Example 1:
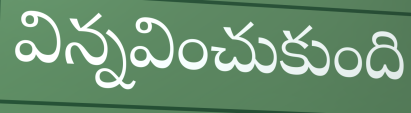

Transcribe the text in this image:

విన్నవించుకుంది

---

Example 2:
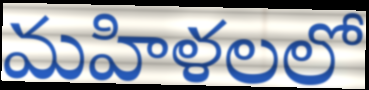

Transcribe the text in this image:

మహిళలలో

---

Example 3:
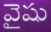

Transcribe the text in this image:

వైషు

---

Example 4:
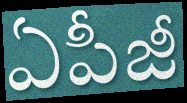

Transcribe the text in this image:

ఏపీజీ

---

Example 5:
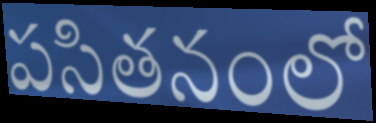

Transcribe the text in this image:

పసితనంలో